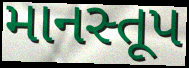
માનસ્તૂપ